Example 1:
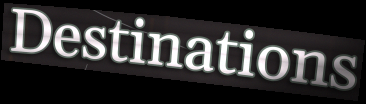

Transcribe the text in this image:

Destinations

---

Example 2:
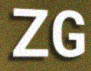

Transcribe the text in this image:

ZG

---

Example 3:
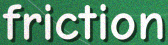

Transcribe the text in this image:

friction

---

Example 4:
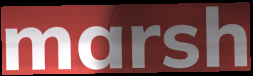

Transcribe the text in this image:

marsh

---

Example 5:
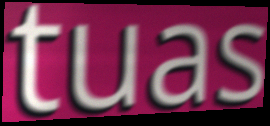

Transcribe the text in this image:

tuas